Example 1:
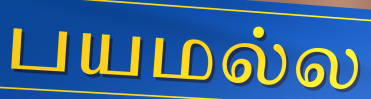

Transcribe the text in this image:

பயமல்ல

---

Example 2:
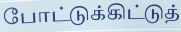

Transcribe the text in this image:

போட்டுக்கிட்டுத்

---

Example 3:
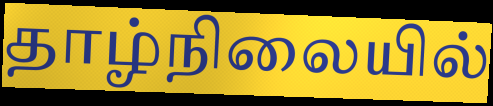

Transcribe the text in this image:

தாழ்நிலையில்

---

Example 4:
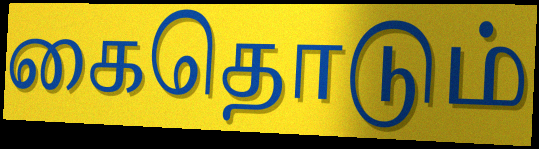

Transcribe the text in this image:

கைதொடும்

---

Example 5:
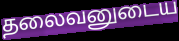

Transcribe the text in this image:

தலைவனுடைய